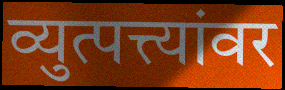
व्युत्पत्त्यांवर